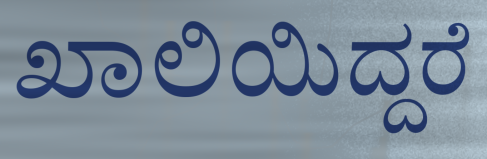
ಖಾಲಿಯಿದ್ದರೆ